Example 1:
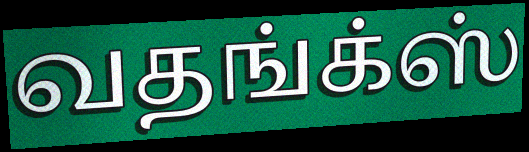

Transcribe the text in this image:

வதங்க்ஸ்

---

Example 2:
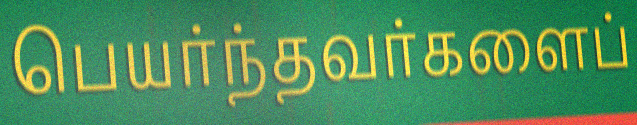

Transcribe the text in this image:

பெயர்ந்தவர்களைப்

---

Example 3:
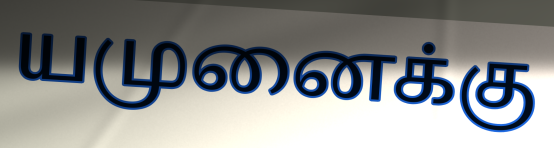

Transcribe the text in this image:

யமுனைக்கு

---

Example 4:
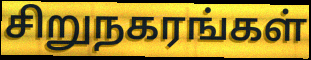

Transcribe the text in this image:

சிறுநகரங்கள்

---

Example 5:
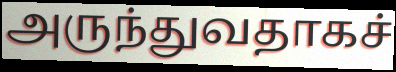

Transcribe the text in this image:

அருந்துவதாகச்